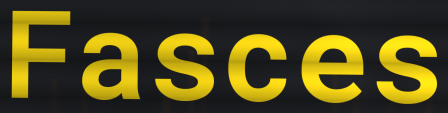
Fasces